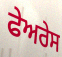
ਫੇਅਰੇਸ